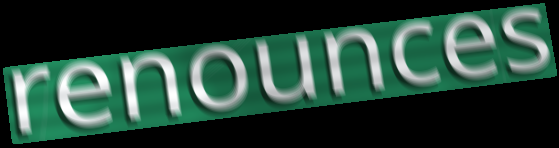
renounces